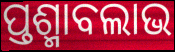
ପ୍ତଶ୍ମାବଲାଭ